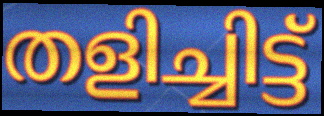
തളിച്ചിട്ട്